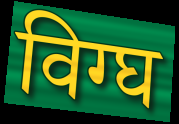
विग्घ